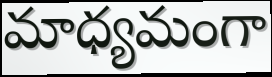
మాధ్యమంగా